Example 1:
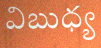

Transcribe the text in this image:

విబుధ్య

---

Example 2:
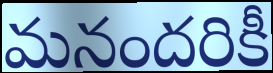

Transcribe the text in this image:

మనందరికీ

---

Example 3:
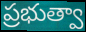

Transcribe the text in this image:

ప్రభుత్వా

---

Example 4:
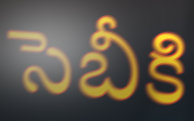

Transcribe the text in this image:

సెబీకి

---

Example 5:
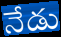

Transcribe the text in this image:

నేడు